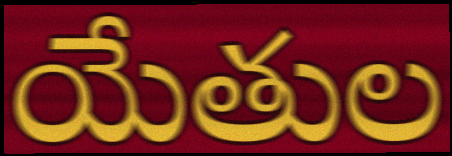
యేతుల